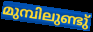
മുമ്പിലുണ്ടു്